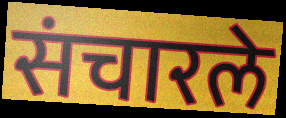
संचारले